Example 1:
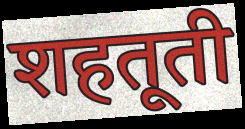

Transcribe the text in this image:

शहतूती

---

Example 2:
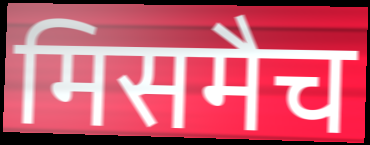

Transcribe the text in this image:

मिसमैच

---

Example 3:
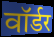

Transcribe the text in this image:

वॉर्डर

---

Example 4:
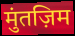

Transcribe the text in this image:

मुंतज़िम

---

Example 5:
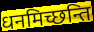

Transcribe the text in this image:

धनमिच्छन्ति